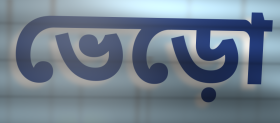
ভেড়ো